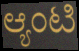
ಆ್ಯಂಟಿ